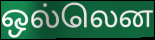
ஒல்லென